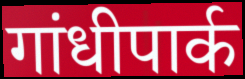
गांधीपार्क